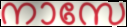
നാസേ